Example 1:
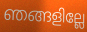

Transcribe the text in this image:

ഞങ്ങളില്ലേ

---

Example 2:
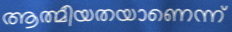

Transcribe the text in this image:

ആത്മീയതയാണെന്ന്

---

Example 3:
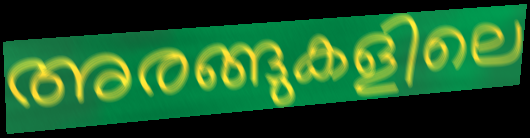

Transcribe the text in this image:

അരങ്ങുകളിലെ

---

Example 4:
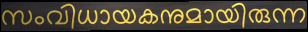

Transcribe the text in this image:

സംവിധായകനുമായിരുന്ന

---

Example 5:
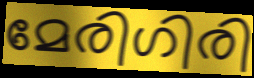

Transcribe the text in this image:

മേരിഗിരി